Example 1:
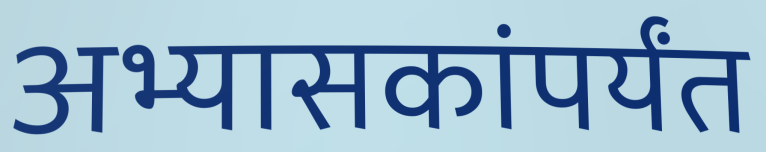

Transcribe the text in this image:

अभ्यासकांपर्यंत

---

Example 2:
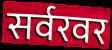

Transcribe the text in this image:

सर्वरवर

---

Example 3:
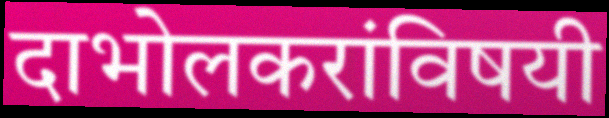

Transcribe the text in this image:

दाभोलकरांविषयी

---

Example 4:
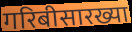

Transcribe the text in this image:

गरिबीसारख्या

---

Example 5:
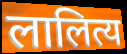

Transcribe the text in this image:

लालित्य